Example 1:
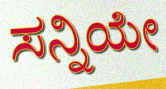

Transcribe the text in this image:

ಸನ್ನಿಯೇ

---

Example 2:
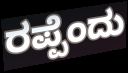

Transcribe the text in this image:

ರಪ್ಪೆಂದು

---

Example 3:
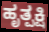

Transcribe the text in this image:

ಹೃತ್ಪಕ್ಷಿ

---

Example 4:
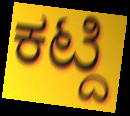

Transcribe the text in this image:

ಕಟ್ದಿ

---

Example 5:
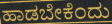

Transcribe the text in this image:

ಹಾಡಬೇಕೆಂದು